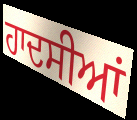
ਹਾਦਸੀਆਂ